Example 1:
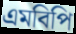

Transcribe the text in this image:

এমবিপি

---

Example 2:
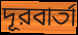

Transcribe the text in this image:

দূরবার্তা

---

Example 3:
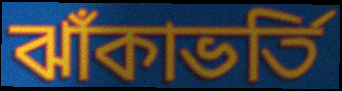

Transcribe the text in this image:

ঝাঁকাভর্তি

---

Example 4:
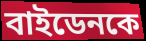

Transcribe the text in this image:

বাইডেনকে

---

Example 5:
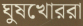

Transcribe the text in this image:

ঘুষখোররা